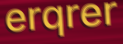
erqrer